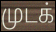
முடக்